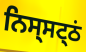
ਨਿਸ੍ਸਟ੍ਠਂ